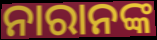
ନାରାନଙ୍କ